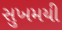
સુખમયી